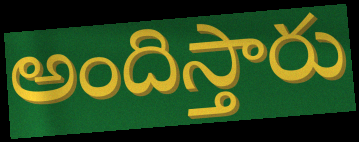
అందిస్తారు